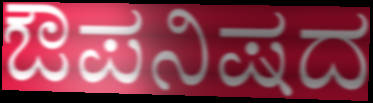
ಔಪನಿಷದ